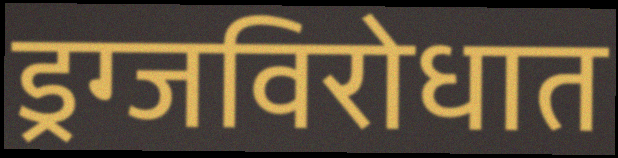
ड्रग्जविरोधात